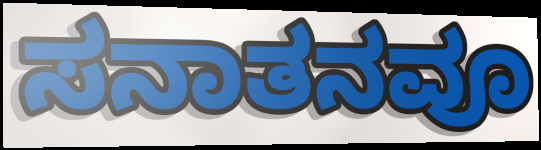
ಸನಾತನವೂ